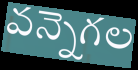
వన్నెగల